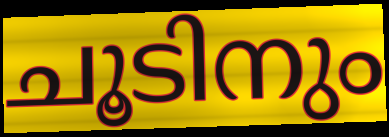
ചൂടിനും